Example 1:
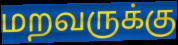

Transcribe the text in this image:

மறவருக்கு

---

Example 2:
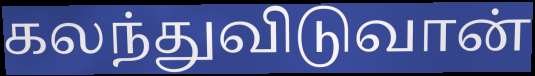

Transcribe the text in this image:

கலந்துவிடுவான்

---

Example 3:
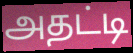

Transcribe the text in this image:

அதட்டி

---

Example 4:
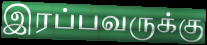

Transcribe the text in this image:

இரப்பவருக்கு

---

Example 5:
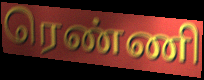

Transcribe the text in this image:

ரெண்ணி